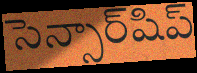
సెన్సార్‌షిప్